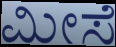
ಮೀಸೆ